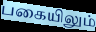
பகையிலும்